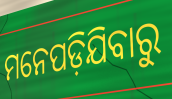
ମନେପଡ଼ିଯିବାରୁ